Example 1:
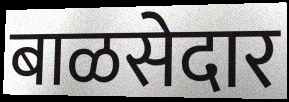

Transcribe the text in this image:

बाळसेदार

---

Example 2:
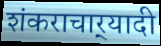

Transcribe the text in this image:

शंकराचार्यादी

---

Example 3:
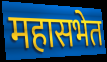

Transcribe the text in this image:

महासभेत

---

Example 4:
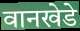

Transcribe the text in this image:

वानखेडे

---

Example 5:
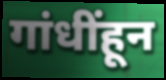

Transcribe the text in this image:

गांधींहून